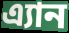
এ্যান